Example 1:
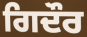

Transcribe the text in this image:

ਗਿਦੌਰ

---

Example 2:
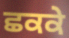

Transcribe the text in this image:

ਛਕਕੇ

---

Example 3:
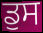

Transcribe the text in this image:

ਡੁਸ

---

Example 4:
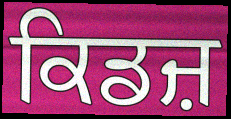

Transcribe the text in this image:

ਕਿਡਜ਼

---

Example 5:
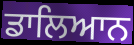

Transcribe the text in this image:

ਡਾਲਿਆਨ